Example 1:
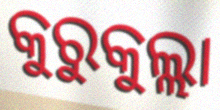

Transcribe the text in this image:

କୁରୁକୁଲ୍ଲା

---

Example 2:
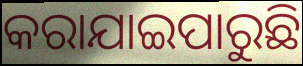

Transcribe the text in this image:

କରାଯାଇପାରୁଛି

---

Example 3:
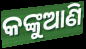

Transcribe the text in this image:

କଙ୍କୁଆଣି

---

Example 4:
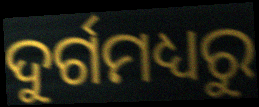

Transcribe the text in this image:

ଦୁର୍ଗମଧ୍ୟରୁ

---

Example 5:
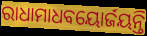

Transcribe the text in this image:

ରାଧାମାଧବୟୋର୍ଜୟନ୍ତି